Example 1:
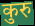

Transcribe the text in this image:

कुरु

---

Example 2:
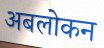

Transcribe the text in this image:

अबलोकन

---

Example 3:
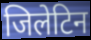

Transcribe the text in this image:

जिलेटिन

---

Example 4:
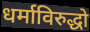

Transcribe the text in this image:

धर्माविरुद्धो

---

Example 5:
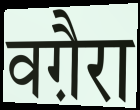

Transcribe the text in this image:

वग़ैरा